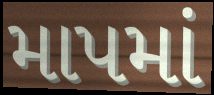
માપમાં